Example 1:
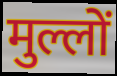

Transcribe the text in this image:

मुल्लों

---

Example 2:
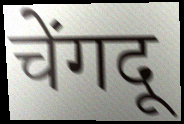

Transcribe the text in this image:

चेंगदू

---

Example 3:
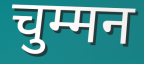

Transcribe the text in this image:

चुम्मन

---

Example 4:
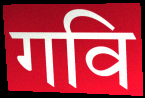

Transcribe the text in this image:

गवि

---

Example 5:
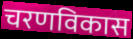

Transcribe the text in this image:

चरणविकास